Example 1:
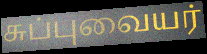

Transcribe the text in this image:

சுப்புவையர்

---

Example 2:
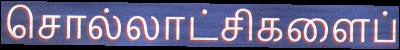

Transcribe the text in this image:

சொல்லாட்சிகளைப்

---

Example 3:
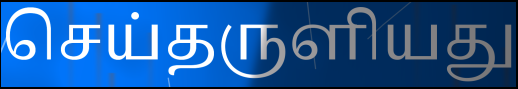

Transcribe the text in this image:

செய்தருளியது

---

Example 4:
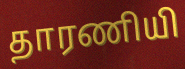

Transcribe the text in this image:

தாரணியி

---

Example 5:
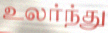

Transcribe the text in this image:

உலர்ந்து